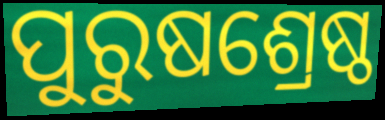
ପୁରୁଷଶ୍ରେଷ୍ଠ